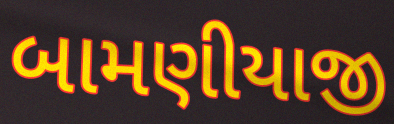
બામણીયાજી